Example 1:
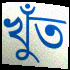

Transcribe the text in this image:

খুঁত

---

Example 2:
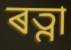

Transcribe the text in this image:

ৰত্না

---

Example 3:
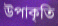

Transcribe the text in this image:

উপাকৃতি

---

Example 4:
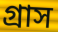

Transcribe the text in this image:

গ্ৰাস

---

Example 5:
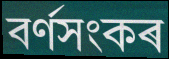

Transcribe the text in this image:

বৰ্ণসংকৰ